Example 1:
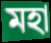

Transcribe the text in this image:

মহা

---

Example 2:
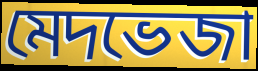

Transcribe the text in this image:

মেদভেজা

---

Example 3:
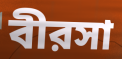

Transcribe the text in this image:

বীরসা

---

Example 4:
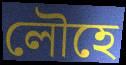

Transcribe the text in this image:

লৌহে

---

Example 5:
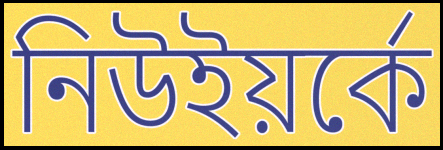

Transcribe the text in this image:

নিউইয়র্কে